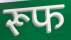
रूफ